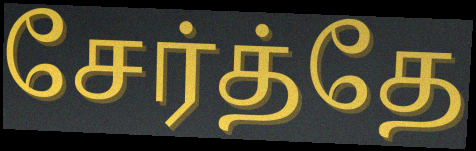
சேர்த்தே